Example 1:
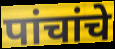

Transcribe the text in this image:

पांचांचे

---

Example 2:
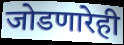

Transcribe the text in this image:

जोडणारेही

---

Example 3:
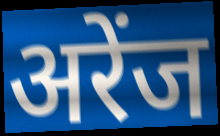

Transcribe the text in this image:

अरेंज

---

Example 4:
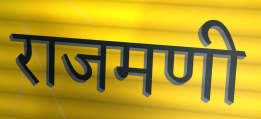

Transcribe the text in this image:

राजमणी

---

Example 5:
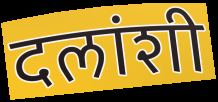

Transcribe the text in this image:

दलांशी